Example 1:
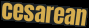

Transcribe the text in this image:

cesarean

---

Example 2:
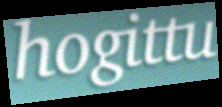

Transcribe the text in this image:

hogittu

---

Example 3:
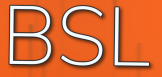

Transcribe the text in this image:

BSL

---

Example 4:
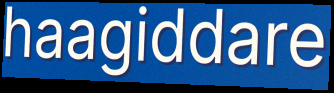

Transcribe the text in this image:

haagiddare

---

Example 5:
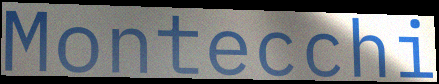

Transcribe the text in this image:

Montecchi